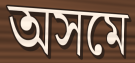
অসমে